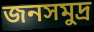
জনসমুদ্র